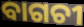
ବାଗଚୀ